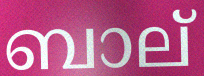
ബാല്